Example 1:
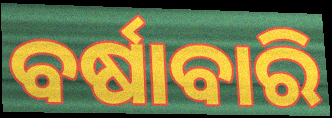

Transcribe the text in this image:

ବର୍ଷାବାରି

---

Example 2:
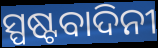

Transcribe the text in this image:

ସ୍ପଷ୍ଟବାଦିନୀ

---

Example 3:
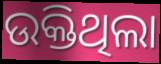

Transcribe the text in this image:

ଉକ୍ତିଥିଲା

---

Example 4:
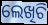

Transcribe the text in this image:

ଲେଖିଚି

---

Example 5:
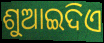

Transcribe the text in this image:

ଶୁଆଇଦିଏ